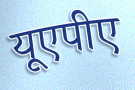
यूएपीए